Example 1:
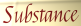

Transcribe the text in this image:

Substance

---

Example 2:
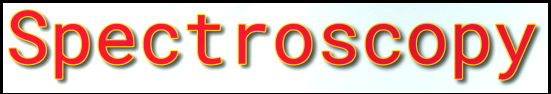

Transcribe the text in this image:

Spectroscopy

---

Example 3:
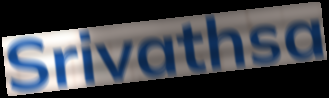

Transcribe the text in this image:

Srivathsa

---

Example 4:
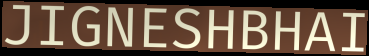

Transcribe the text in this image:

JIGNESHBHAI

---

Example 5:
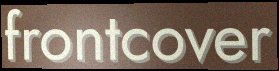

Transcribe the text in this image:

frontcover